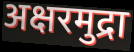
अक्षरमुद्रा